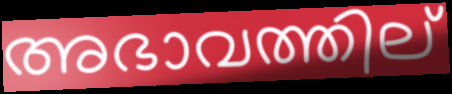
അഭാവത്തില്